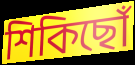
শিকিছোঁ